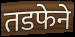
तडफेने